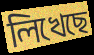
লিখেছে